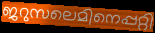
ജറുസലെമിനെപ്പറ്റി